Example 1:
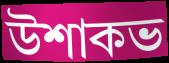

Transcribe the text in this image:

উশাকভ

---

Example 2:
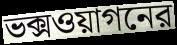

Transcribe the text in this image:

ভক্সওয়াগনের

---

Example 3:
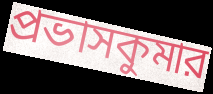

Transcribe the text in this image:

প্রভাসকুমার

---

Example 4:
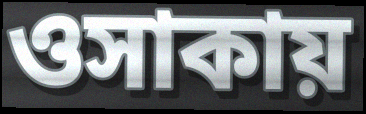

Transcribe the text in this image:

ওসাকায়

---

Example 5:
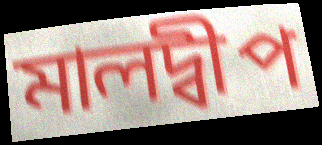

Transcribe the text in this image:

মালদ্বীপ